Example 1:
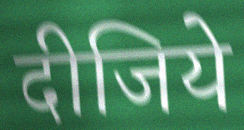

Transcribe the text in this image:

दीजिये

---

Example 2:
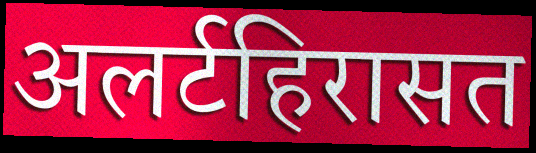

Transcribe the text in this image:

अलर्टहिरासत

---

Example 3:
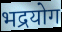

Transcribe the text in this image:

भद्रयोग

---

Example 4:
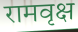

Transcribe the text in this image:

रामवृक्ष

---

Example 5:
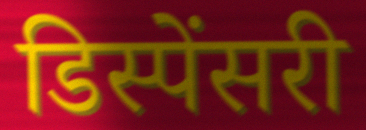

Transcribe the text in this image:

डिस्पेंसरी